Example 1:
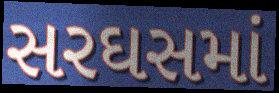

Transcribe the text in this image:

સરઘસમાં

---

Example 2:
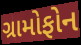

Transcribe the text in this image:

ગ્રામોફોન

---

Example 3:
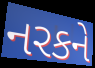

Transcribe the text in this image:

નરકને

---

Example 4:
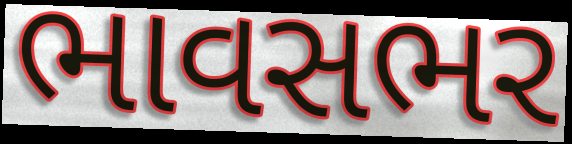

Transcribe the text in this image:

ભાવસભર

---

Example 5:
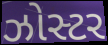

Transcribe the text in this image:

ઝોસ્ટર